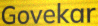
Govekar